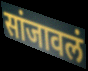
सांजावलं